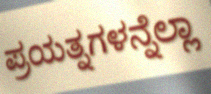
ಪ್ರಯತ್ನಗಳನ್ನೆಲ್ಲಾ